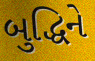
બુદ્ધિને